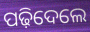
ପଢ଼ିଦେଲେ